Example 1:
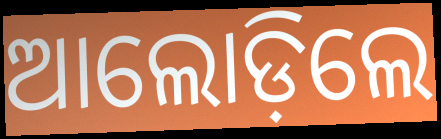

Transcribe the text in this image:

ଆଲୋଡ଼ିଲେ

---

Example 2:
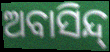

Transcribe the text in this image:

ଅବାସିନ୍ଦ୍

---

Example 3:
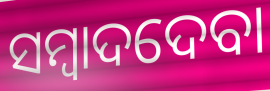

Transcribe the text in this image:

ସମ୍ବାଦଦେବା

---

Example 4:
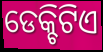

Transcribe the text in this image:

ଡେକ୍ଚିଟିଏ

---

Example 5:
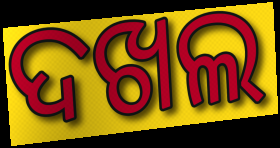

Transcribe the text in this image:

ଦଖଲ